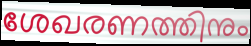
ശേഖരണത്തിനും